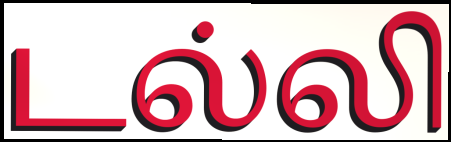
டல்லி